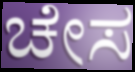
ಚೇಸ